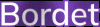
Bordet